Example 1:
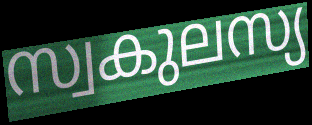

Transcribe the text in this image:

സ്വകുലസ്യ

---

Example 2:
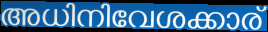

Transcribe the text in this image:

അധിനിവേശക്കാര്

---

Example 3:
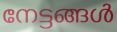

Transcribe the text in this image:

നേട്ടങ്ങൾ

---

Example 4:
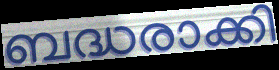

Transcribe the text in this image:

ബദ്ധരാക്കി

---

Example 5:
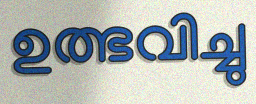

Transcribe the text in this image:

ഉത്ഭവിച്ചു